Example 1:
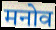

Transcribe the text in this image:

मनोव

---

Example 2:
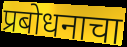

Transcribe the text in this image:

प्रबोधनाचा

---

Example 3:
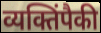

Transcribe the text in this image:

व्यक्तिंपैकी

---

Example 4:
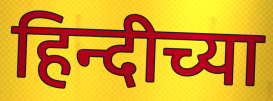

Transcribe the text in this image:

हिन्दीच्या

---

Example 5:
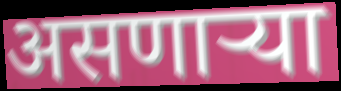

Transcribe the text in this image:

असणार्‍या